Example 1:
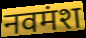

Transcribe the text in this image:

नवमंश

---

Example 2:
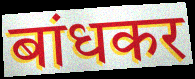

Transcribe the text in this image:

बांधकर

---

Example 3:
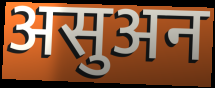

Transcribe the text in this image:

असुअन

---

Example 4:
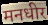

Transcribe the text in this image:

मनधीर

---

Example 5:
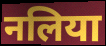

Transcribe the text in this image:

नलिया